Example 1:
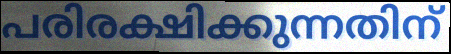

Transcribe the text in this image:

പരിരക്ഷിക്കുന്നതിന്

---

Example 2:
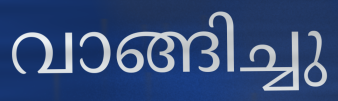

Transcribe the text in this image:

വാങ്ങിച്ചു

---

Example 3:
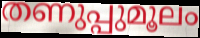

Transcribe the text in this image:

തണുപ്പുമൂലം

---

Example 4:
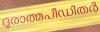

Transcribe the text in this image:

ദുരാത്മപീഡിതർ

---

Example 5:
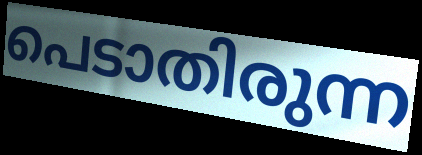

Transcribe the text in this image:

പെടാതിരുന്ന